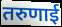
तरुणाई